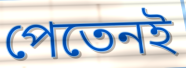
পেতেনই